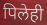
पिलेही